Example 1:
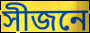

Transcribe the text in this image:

সীজনে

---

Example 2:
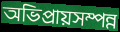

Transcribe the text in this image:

অভিপ্রায়সম্পন্ন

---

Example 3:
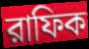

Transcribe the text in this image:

রাফিক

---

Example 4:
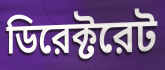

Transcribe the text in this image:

ডিরেক্টরেট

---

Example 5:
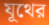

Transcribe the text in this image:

যূথের